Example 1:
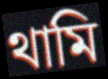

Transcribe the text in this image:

থামি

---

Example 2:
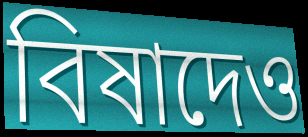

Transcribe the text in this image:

বিষাদেও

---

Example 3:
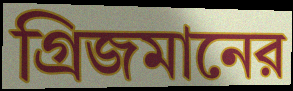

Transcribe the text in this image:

গ্রিজমানের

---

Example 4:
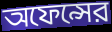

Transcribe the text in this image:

অফেন্সের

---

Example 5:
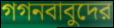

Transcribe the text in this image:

গগনবাবুদের